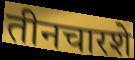
तीनचारशे